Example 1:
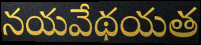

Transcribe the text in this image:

నయవేథయత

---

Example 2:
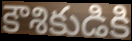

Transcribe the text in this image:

కౌశికుడికి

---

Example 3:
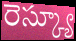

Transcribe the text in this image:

రెస్క్యూ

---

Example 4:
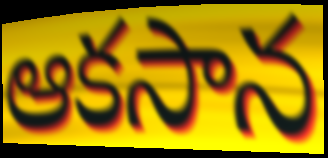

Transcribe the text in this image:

ఆకసాన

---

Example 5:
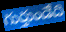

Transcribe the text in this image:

గుర్తుండేది